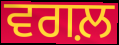
ਵਗਲ਼